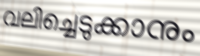
വലിച്ചെടുക്കാനും